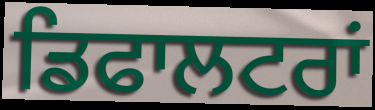
ਡਿਫਾਲਟਰਾਂ